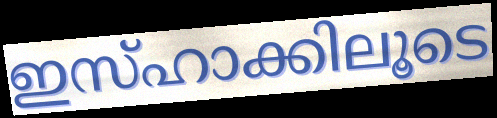
ഇസ്ഹാക്കിലൂടെ